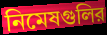
নিমেষগুলির